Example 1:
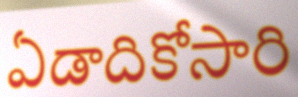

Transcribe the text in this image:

ఏడాదికోసారి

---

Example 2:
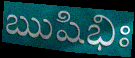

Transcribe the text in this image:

ఋషిభిః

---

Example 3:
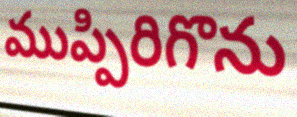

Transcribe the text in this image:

ముప్పిరిగొను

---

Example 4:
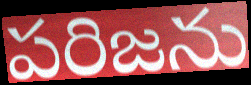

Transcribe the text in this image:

పరిజను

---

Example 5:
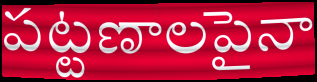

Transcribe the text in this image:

పట్టణాలపైనా